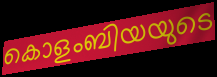
കൊളംബിയയുടെ